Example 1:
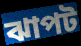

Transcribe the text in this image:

ঝাপট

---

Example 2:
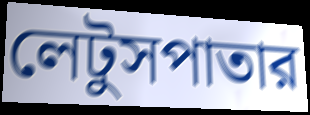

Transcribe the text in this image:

লেটুসপাতার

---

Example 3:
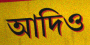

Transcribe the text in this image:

আদিও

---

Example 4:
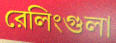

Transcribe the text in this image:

রেলিংগুলা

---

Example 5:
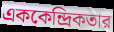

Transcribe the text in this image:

এককেন্দ্রিকতার